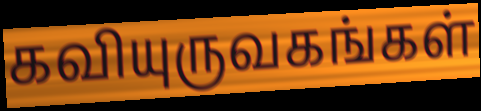
கவியுருவகங்கள்